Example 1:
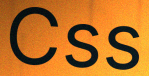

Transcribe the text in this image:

Css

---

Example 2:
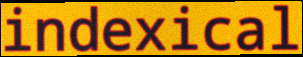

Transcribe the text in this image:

indexical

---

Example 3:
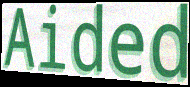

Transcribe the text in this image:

Aided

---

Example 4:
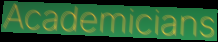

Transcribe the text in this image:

Academicians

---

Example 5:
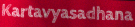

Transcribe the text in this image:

Kartavyasadhana